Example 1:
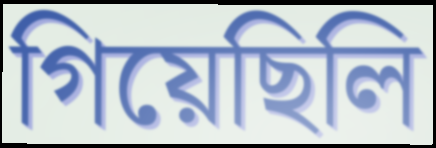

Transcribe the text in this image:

গিয়েছিলি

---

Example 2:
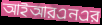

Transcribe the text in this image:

আইআরএনএর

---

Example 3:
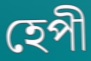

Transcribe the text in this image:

হেপী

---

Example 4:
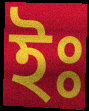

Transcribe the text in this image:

ইঃ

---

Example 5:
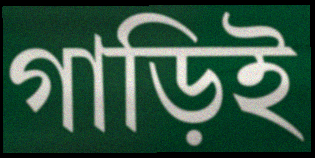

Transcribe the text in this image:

গাড়িই